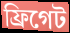
ফ্রিগেট